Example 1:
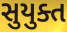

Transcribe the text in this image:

સુયુક્ત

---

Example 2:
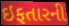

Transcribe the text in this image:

ઇફતારની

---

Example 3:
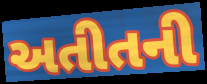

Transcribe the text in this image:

અતીતની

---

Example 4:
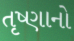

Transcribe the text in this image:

તૃષ્ણાનો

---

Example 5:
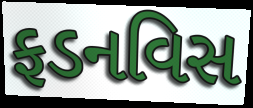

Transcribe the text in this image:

ફડનવિસ